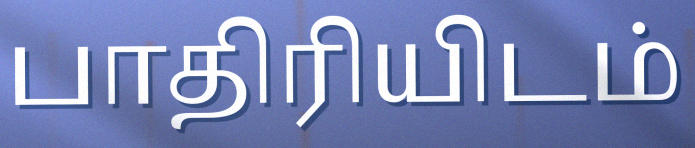
பாதிரியிடம்